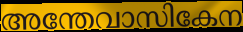
അന്തേവാസികേന